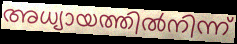
അധ്യായത്തിൽനിന്ന്